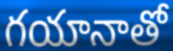
గయానాతో